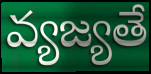
వ్యజ్యతే